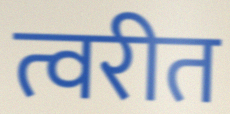
त्वरीत